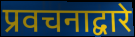
प्रवचनाद्वारे